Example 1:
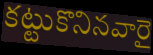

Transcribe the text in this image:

కట్టుకొనినవారై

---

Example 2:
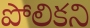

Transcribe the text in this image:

పోలికని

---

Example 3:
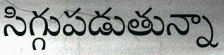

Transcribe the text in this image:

సిగ్గుపడుతున్నా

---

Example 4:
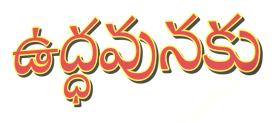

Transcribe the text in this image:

ఉద్ధవునకు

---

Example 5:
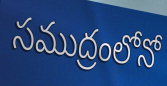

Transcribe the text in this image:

సముద్రంలోనో